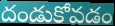
దండుకోవడం